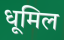
धूमिल